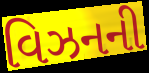
વિઝનની